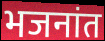
भजनांत